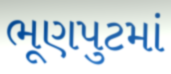
ભૂણપુટમાં